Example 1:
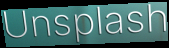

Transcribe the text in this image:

Unsplash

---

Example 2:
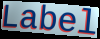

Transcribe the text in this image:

Label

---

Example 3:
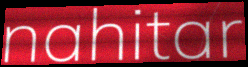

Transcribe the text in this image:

nahitar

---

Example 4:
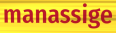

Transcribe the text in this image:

manassige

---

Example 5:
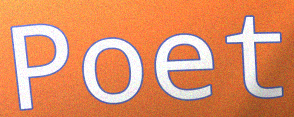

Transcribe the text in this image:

Poet